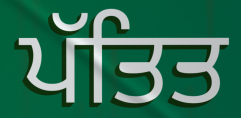
ਪੱਤਿਤ